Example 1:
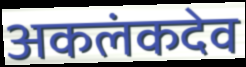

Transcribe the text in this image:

अकलंकदेव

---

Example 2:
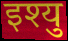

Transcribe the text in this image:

इश्यु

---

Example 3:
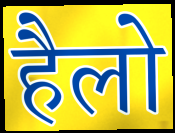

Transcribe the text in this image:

हैलो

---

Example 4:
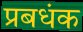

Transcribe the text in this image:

प्रबधंक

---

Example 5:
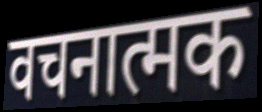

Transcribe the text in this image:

वचनात्मक